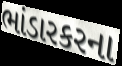
ભાંડારકરના